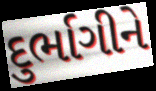
દુર્ભાગીને